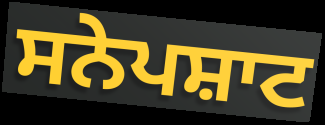
ਸਨੇਪਸ਼ਾਟ